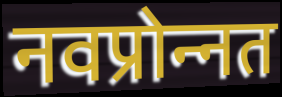
नवप्रोन्नत